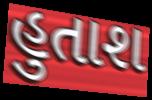
હુતાશ